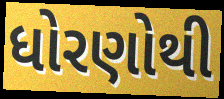
ધોરણોથી